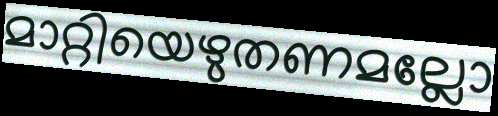
മാറ്റിയെഴുതണമല്ലോ